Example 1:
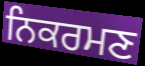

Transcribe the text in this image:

ਨਿਕਰਮਣ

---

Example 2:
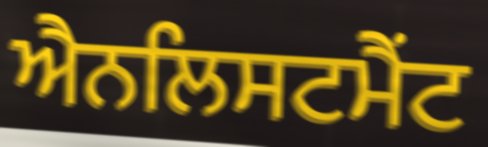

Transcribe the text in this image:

ਐਨਲਿਸਟਮੈਂਟ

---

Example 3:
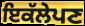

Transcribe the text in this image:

ਇਕੱਲੇਪਣ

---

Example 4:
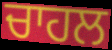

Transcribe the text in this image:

ਚਾਹਲ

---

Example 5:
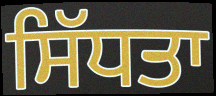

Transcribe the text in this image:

ਸਿੱਧਤਾ